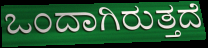
ಒಂದಾಗಿರುತ್ತದೆ